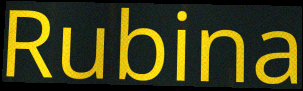
Rubina